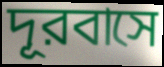
দূরবাসে